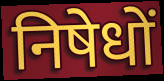
निषेधों